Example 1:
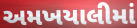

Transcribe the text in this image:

અમખયાલીમાં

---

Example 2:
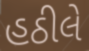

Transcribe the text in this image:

હઠીલે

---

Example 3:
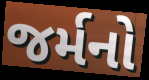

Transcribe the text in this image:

જર્મનો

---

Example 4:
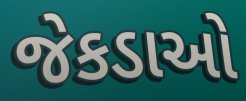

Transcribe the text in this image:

જેકડાઓ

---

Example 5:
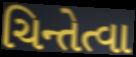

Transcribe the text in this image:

ચિન્તેત્વા